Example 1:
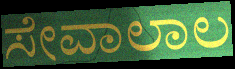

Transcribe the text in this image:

ಸೇವಾಲಾಲ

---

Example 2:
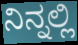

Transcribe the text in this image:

ನಿನ್ನಲ್ಲಿ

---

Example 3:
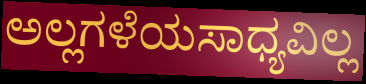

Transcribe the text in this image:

ಅಲ್ಲಗಳೆಯಸಾಧ್ಯವಿಲ್ಲ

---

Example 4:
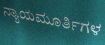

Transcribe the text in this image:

ನ್ಯಾಯಮೂರ್ತಿಗಳ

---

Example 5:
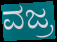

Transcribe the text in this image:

ವಜ್ರ